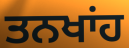
ਤਨਖਾਂਹ